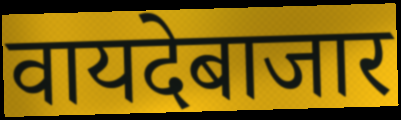
वायदेबाजार